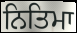
ਨਿਤਿਮਾ